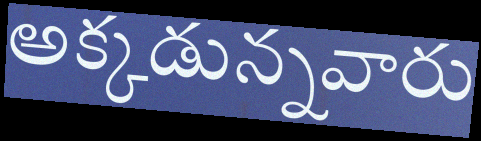
అక్కడున్నవారు